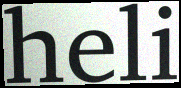
heli